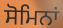
ਸੋਮਿਨਾਂ